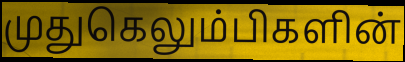
முதுகெலும்பிகளின்